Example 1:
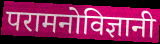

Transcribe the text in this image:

परामनोविज्ञानी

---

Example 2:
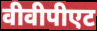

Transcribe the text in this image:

वीवीपीएट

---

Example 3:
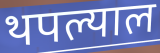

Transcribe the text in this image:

थपल्याल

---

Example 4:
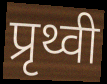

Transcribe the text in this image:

प्रृथ्वी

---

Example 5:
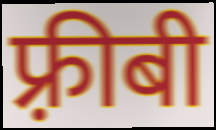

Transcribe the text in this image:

फ़्रीबी